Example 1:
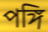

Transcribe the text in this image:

পঙ্গি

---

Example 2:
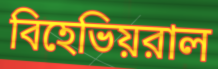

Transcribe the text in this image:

বিহেভিয়রাল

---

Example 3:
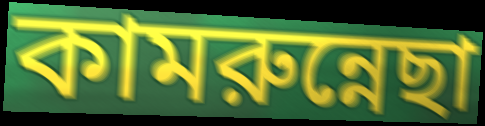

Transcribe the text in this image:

কামরুন্নেছা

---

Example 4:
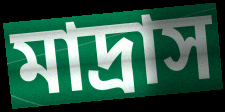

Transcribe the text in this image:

মাদ্রাস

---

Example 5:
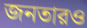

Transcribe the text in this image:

জনতারও